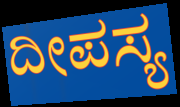
ದೀಪಸ್ಯ